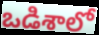
ఒడిశాలో